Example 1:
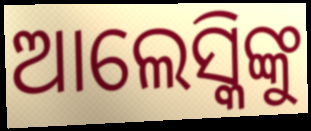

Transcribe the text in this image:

ଆଲେସ୍କିଙ୍କୁ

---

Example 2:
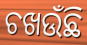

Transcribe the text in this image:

ଚଖଉଁଛି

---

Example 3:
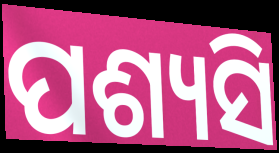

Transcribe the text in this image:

ପଶ୍ୟସି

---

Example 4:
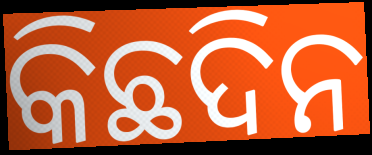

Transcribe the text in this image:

କିଛଦିନ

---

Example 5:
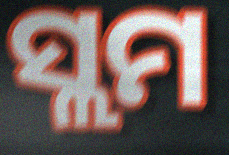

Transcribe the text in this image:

ସ୍ଲମ